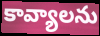
కావ్యాలను